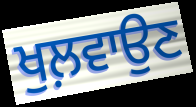
ਖੁਲ਼ਵਾਉਣ